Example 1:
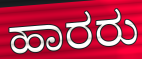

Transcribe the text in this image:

ಹಾರರು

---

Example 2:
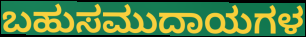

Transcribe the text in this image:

ಬಹುಸಮುದಾಯಗಳ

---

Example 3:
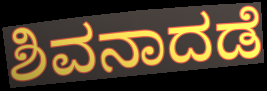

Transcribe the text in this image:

ಶಿವನಾದಡೆ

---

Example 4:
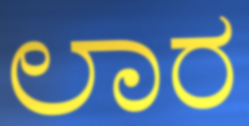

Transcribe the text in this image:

ಲಾರ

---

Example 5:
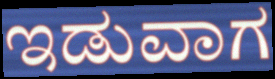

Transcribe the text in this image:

ಇಡುವಾಗ